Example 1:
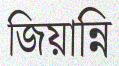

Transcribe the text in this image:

জিয়ান্নি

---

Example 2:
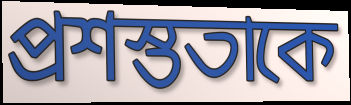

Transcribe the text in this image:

প্রশস্ততাকে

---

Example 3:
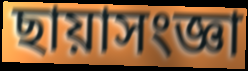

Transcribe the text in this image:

ছায়াসংজ্ঞা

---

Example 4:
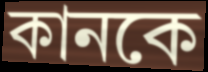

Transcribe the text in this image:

কানকে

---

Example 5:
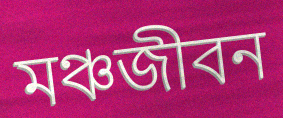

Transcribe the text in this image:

মঞ্চজীবন